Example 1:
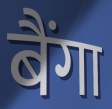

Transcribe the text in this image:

बैंगा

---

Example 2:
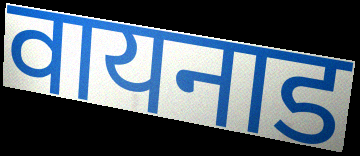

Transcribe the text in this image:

वायनाड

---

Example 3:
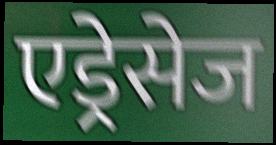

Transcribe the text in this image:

एड्रेसेज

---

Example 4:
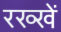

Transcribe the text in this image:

रख्खें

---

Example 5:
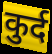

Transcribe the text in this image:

कुर्द